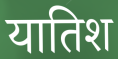
यातिश